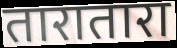
तारातारा